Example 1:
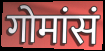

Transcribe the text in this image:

गोमांसं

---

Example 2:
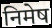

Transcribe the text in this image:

निमेष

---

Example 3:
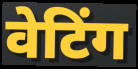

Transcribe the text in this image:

वेटिंग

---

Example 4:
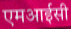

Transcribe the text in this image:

एमआईसी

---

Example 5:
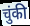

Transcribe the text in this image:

चुंकी